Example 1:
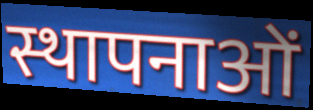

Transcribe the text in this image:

स्थापनाओं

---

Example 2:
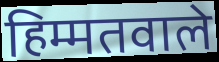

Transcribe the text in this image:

हिम्मतवाले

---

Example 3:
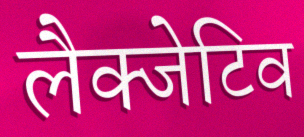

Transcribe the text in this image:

लैक्जेटिव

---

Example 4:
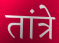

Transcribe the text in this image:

तांत्रे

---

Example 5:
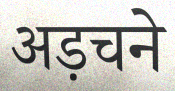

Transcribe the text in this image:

अड़चने